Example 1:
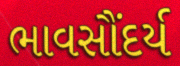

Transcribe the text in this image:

ભાવસૌંદર્ય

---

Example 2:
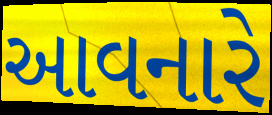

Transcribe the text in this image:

આવનારે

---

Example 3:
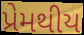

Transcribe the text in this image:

પ્રેમથીય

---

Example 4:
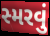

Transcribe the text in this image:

સ્મરવું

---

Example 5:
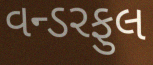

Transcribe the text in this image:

વન્ડરફુલ